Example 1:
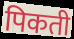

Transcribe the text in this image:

पिकती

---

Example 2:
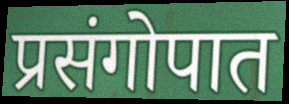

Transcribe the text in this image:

प्रसंगोपात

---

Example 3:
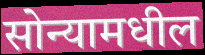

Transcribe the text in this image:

सोन्यामधील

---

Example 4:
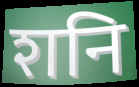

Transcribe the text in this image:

शनि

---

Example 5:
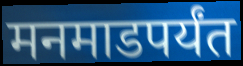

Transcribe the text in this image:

मनमाडपर्यंत